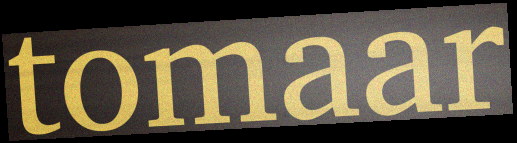
tomaar